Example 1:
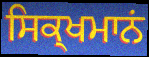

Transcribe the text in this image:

ਸਿਕ੍ਖਮਾਨਂ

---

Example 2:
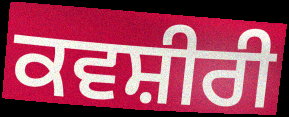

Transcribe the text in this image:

ਕਵਸ਼ੀਰੀ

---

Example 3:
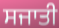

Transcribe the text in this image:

ਸਜਾਤੀ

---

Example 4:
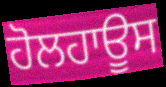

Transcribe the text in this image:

ਹੋਲਹਾਊਸ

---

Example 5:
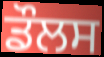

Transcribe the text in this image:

ਡੌਲਸ